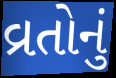
વ્રતોનું